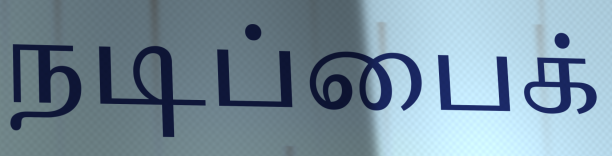
நடிப்பைக்